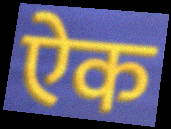
ऐक